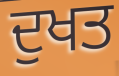
ਦੁਖਤ